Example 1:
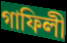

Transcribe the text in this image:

গাফিলী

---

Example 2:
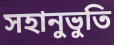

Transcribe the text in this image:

সহানুভুতি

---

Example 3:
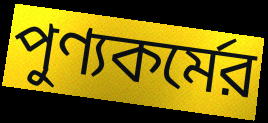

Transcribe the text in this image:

পুণ্যকর্মের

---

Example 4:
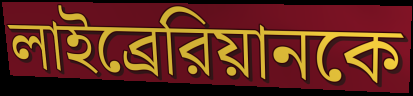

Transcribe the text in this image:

লাইব্রেরিয়ানকে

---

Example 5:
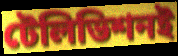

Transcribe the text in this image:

টেলিভিশনই